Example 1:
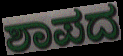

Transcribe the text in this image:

ಶಾಪದ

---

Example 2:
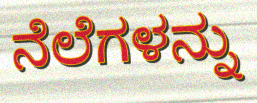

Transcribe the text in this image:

ನೆಲೆಗಳನ್ನು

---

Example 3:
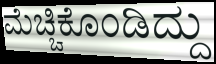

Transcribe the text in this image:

ಮೆಚ್ಚಿಕೊಂಡಿದ್ದು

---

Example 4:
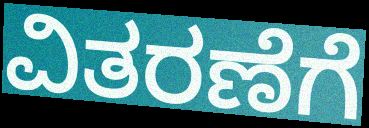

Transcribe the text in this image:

ವಿತರಣೆಗೆ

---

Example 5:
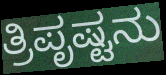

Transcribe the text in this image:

ತ್ರಿಪೃಷ್ಟನು